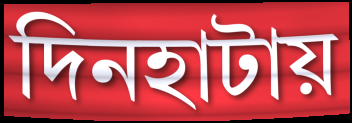
দিনহাটায়